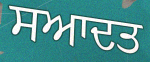
ਸਆਦਤ